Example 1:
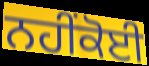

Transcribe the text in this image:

ਨਹੀਂਕੋਈ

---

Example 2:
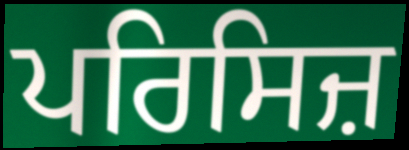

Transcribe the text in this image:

ਪਰਿਸਿਜ਼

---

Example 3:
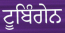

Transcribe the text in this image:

ਟੂਬਿੰਗੇਨ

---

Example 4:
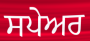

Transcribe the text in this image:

ਸਪੇਅਰ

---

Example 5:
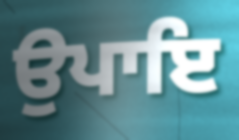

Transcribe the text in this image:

ਉਪਾਇ